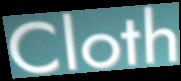
Cloth